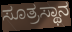
ಸೂತ್ರಸ್ಥಾನ